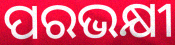
ପରଭକ୍ଷୀ